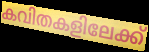
കവിതകളിലേക്ക്